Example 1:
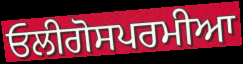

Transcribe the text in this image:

ਓਲੀਗੋਸਪਰਮੀਆ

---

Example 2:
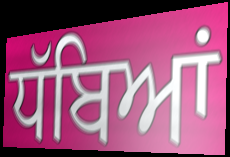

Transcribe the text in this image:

ਧੱਬਿਆਂ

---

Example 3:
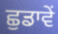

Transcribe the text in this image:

ਛੁਡਾਵੇਂ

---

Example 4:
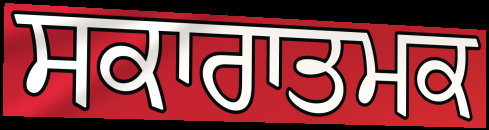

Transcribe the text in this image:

ਸਕਾਰਾਤਮਕ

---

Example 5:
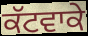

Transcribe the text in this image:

ਕੱਟਵਾਕੇ